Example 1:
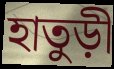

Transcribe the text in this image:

হাতুড়ী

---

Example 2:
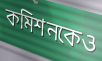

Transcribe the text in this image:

কমিশনকেও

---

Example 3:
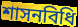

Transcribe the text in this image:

শাসনবিধি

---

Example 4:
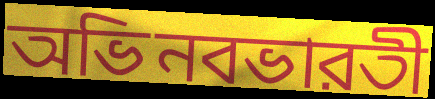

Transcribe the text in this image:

অভিনবভারতী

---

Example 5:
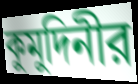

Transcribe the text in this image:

কুমুদিনীর